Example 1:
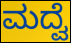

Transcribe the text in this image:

ಮದ್ವೆ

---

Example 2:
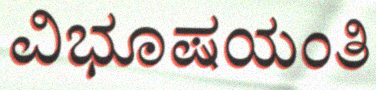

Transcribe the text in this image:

ವಿಭೂಷಯಂತಿ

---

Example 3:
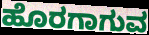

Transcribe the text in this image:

ಹೊರಗಾಗುವ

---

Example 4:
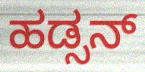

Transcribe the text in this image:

ಹಡ್ಸನ್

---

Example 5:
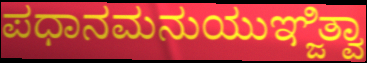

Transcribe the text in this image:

ಪಧಾನಮನುಯುಞ್ಜಿತ್ವಾ